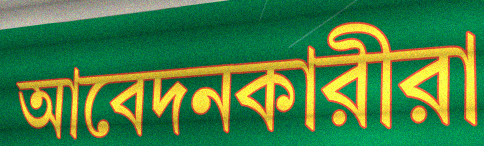
আবেদনকারীরা